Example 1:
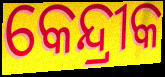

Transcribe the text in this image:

କେନ୍ଦ୍ରୀକ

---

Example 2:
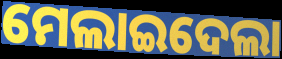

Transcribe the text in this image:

ମେଲାଇଦେଲା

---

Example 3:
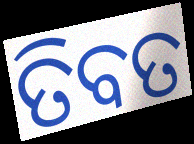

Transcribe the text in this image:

ତିବତ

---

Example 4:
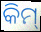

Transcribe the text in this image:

କିମ୍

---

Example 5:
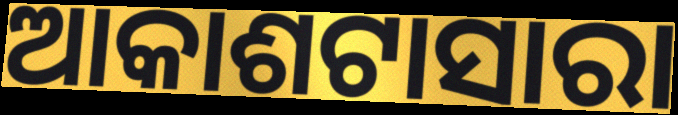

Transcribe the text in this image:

ଆକାଶଟାସାରା